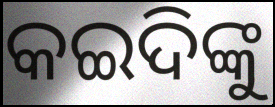
କଇଦିଙ୍କୁ